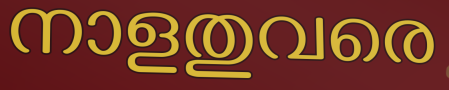
നാളതുവരെ